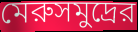
মেরুসমুদ্রের